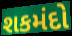
શકમંદો